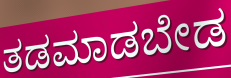
ತಡಮಾಡಬೇಡ